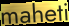
maheti